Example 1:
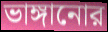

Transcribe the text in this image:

ভাঙ্গানোর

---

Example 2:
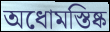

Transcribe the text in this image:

অধোমস্তিষ্ক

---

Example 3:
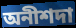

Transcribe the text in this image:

অনীশদা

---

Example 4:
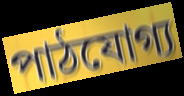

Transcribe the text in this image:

পাঠযোগ্য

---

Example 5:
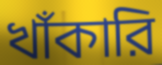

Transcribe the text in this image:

খাঁকারি